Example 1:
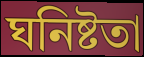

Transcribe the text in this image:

ঘনিষ্টতা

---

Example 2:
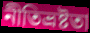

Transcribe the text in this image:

নীতিভ্রষ্টতা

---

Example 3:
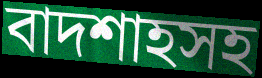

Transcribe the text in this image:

বাদশাহসহ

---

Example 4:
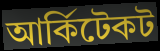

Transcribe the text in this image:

আর্কিটেকট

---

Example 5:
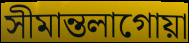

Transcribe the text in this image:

সীমান্তলাগোয়া